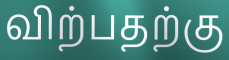
விற்பதற்கு